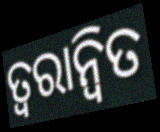
ତ୍ଵରାନ୍ବିତ